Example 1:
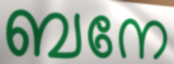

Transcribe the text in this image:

ബനേ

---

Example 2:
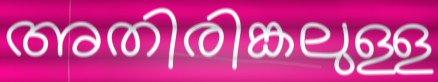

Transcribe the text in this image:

അതിരിങ്കലുള്ള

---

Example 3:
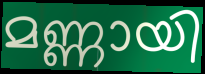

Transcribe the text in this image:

മണ്ണായി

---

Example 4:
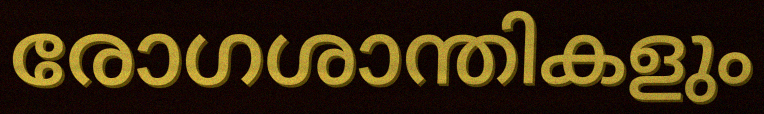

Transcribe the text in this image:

രോഗശാന്തികളും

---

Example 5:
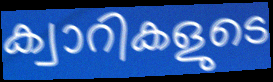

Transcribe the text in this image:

ക്വാറികളുടെ